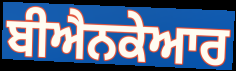
ਬੀਐਨਕੇਆਰ